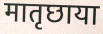
मातृछाया